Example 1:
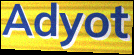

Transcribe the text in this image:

Adyot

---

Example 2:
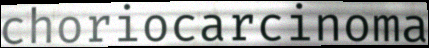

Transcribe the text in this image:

choriocarcinoma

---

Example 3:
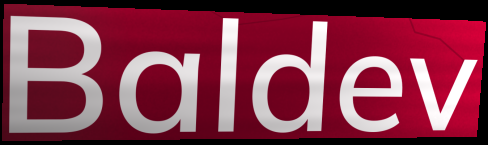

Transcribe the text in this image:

Baldev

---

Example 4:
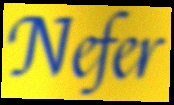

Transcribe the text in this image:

Nefer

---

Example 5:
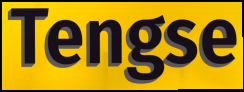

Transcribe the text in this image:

Tengse